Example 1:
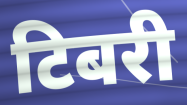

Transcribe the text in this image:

टिबरी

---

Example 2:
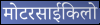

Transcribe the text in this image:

मोटरसाईकिलो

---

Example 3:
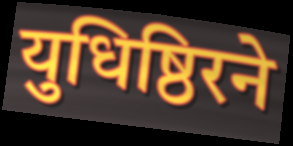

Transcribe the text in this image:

युधिष्ठिरने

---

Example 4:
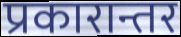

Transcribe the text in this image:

प्रकारान्तर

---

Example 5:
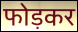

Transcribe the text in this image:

फोड़कर